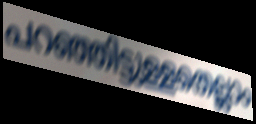
പറഞ്ഞിട്ടുള്ളതെല്ലാം